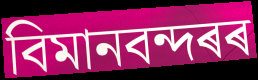
বিমানবন্দৰৰ